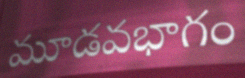
మూడవభాగం